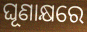
ଘୂଣାକ୍ଷରେ